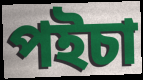
পইচা